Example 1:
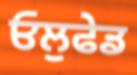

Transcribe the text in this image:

ਓਲੁਫੇਡ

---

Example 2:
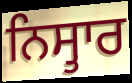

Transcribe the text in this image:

ਨਿਸ੍ਤਾਰ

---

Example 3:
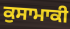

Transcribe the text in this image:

ਕੁਸਾਮਾਕੀ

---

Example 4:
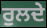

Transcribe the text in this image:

ਰੁਲਦੇ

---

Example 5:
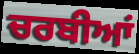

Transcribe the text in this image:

ਚਰਬੀਆਂ